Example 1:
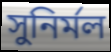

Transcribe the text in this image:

সুনির্মল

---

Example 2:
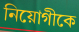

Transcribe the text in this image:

নিয়োগীকে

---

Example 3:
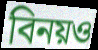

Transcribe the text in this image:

বিনয়ও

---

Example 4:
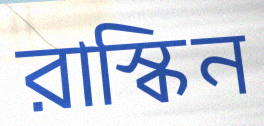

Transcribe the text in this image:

রাস্কিন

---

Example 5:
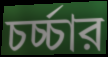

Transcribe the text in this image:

চর্চ্চার